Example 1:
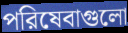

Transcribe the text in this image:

পরিষেবাগুলো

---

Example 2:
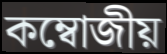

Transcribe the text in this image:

কম্বোজীয়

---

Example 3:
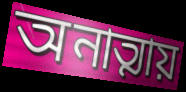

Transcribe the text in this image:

অনাত্মায়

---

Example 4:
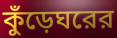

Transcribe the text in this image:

কুঁড়েঘরের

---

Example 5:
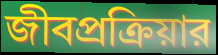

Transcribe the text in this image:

জীবপ্রক্রিয়ার